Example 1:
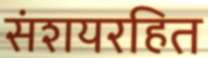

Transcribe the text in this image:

संशयरहित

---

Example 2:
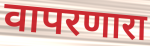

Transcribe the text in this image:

वापरणारा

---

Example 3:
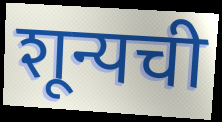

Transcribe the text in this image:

शून्यची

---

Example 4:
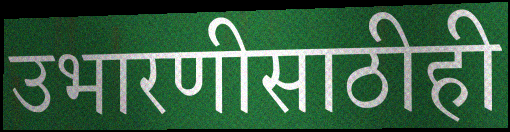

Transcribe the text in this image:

उभारणीसाठीही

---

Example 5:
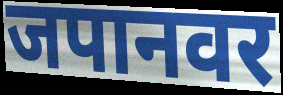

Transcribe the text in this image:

जपानवर